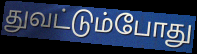
துவட்டும்போது